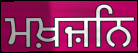
ਮਖ਼ਜ਼ਨਿ